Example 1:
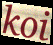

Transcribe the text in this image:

koi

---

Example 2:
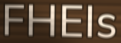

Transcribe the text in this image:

FHEIs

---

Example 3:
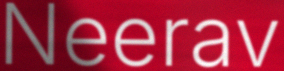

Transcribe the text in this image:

Neerav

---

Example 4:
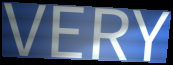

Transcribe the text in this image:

VERY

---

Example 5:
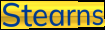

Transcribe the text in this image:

Stearns